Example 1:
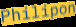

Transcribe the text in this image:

Philipon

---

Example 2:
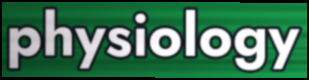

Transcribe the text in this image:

physiology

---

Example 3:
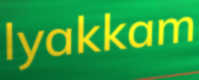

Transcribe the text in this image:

Iyakkam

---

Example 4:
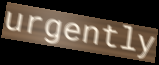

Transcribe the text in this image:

urgently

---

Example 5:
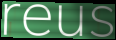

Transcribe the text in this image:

reus